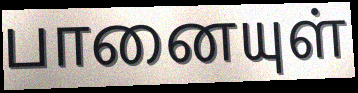
பானையுள்